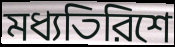
মধ্যতিরিশে